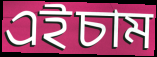
এইচাম